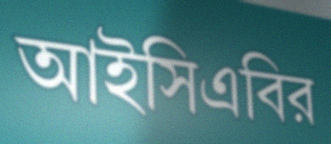
আইসিএবির